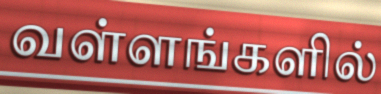
வள்ளங்களில்